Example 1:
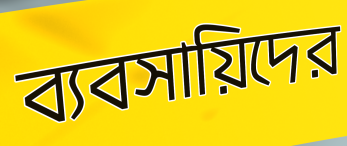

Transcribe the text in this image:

ব্যবসায়িদের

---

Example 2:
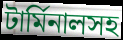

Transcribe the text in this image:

টার্মিনালসহ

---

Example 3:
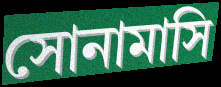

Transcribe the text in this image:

সোনামাসি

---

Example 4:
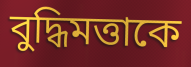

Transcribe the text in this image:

বুদ্ধিমত্তাকে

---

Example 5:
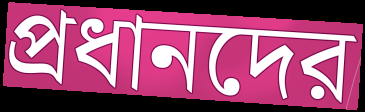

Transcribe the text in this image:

প্রধানদের